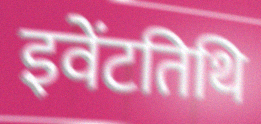
इवेंटतिथि